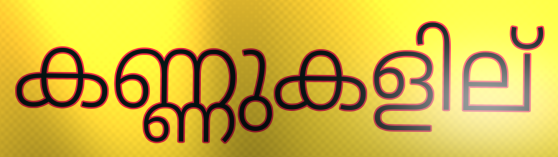
കണ്ണുകളില്